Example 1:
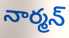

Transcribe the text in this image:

నార్మన్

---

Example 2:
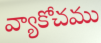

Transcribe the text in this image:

వ్యాకోచము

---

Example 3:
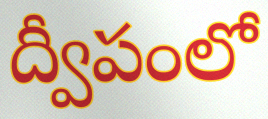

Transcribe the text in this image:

ద్వీపంలో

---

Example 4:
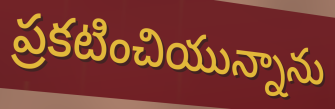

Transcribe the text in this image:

ప్రకటించియున్నాను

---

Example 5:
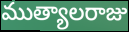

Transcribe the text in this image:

ముత్యాలరాజు